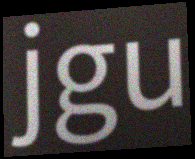
jgu